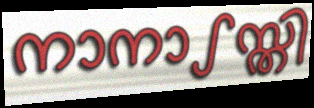
നാനാഽസ്തി